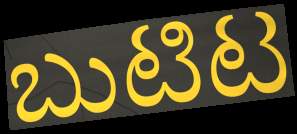
ಬುಟಿಟ